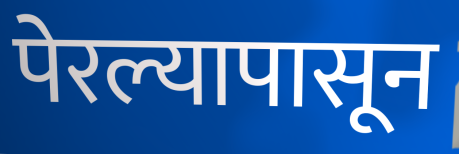
पेरल्यापासून